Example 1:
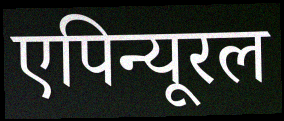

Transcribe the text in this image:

एपिन्यूरल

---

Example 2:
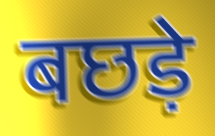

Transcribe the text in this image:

बछड़े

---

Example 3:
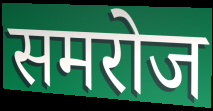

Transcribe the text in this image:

समरोज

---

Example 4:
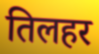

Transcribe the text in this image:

तिलहर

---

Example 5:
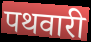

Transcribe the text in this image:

पथवारी